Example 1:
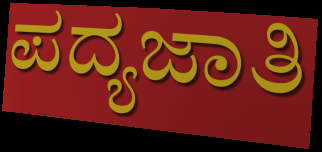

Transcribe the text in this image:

ಪದ್ಯಜಾತಿ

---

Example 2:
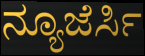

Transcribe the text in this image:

ನ್ಯೂಜೆರ್ಸಿ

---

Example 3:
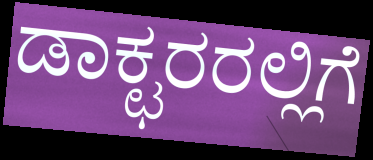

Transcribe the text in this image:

ಡಾಕ್ಟರರಲ್ಲಿಗೆ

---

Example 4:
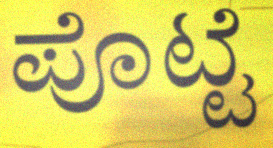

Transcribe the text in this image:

ಪೊಟ್ಟೆ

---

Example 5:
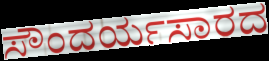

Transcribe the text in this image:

ಸೌಂದರ್ಯಸಾರದ